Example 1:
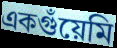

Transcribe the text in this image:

একগুঁয়েমি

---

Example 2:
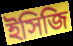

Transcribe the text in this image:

ইসিজি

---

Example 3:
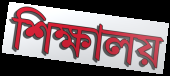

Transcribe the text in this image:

শিক্ষালয়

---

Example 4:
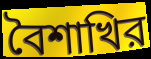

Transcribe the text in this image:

বৈশাখির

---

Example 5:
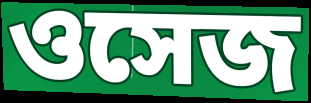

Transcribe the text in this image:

ওসেজ